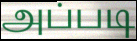
அப்படி